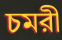
চমরী